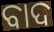
ବାଦ